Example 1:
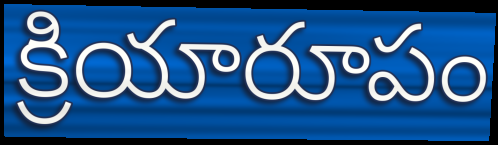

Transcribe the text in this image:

క్రియారూపం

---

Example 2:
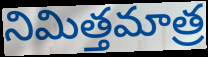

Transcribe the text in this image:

నిమిత్తమాత్ర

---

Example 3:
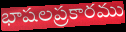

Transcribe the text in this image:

భాషలప్రకారము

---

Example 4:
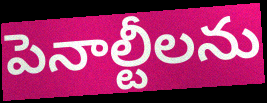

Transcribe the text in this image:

పెనాల్టీలను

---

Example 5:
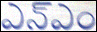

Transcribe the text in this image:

ఎన్ఎం